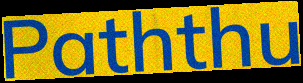
Paththu